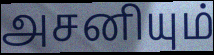
அசனியும்